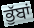
ਭੁੱਬਾਂ